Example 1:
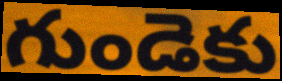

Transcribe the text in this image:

గుండెకు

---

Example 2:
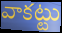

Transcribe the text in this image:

వాకట్టు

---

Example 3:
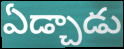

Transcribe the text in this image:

ఏడ్చాడు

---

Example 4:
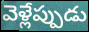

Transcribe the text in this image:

వెళ్లేప్పుడు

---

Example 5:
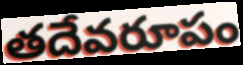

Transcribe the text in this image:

తదేవరూపం